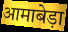
आमाबेड़ा